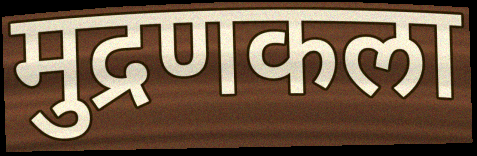
मुद्रणकला